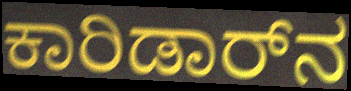
ಕಾರಿಡಾರ್‌ನ